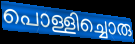
പൊള്ളിച്ചൊരു